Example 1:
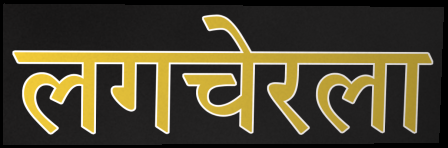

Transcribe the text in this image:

लगचेरला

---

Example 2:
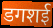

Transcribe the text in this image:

डगशई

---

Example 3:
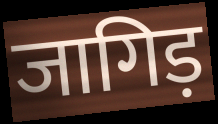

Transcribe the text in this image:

जागिड़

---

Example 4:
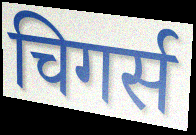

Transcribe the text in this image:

चिगर्स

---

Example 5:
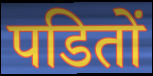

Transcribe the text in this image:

पडितों